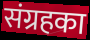
संग्रहका